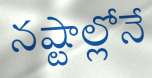
నష్టాల్లోనే